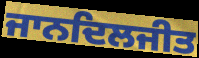
ਜਾਨਦਿਲਜੀਤ